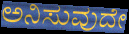
ಅನಿಸುವುದೇ